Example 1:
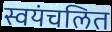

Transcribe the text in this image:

स्वयंचलित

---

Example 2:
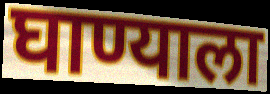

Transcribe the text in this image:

घाण्याला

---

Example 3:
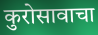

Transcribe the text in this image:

कुरोसावाचा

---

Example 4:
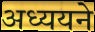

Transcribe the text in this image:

अध्ययने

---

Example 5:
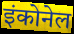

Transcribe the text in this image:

इंकोनेल